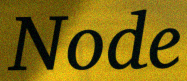
Node